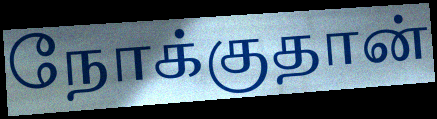
நோக்குதான்